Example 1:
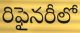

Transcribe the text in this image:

రిఫైనరీలో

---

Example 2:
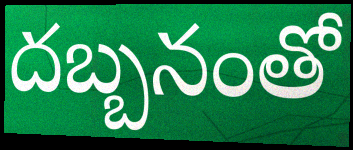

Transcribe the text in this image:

దబ్బనంతో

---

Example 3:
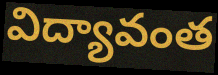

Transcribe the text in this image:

విద్యావంత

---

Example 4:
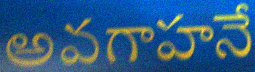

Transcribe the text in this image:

అవగాహనే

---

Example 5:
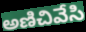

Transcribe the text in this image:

అణిచివేసి